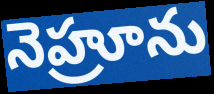
నెహ్రూను